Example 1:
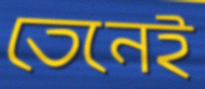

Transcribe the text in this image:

তেনেই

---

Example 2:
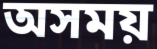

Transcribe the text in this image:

অসময়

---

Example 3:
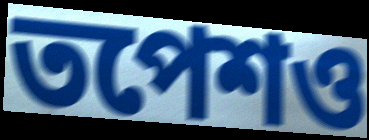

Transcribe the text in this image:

তপেশও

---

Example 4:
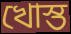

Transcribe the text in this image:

খোস্ত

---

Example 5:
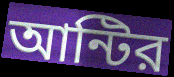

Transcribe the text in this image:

আন্টির